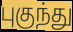
புகுந்து